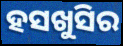
ହସଖୁସିର